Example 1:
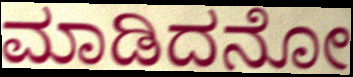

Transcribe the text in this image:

ಮಾಡಿದನೋ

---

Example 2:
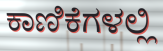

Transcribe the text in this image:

ಕಾಣಿಕೆಗಳಲ್ಲಿ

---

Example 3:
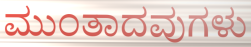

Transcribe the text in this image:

ಮುಂತಾದವುಗಳು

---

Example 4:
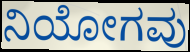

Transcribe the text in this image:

ನಿಯೋಗವು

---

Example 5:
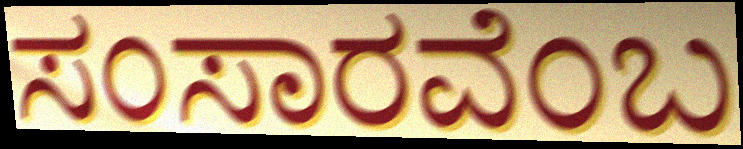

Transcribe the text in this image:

ಸಂಸಾರವೆಂಬ